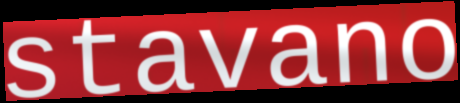
stavano